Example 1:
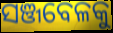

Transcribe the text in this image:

ସଞ୍ଜବେଳକୁ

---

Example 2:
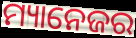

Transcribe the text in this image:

ମ୍ୟାନେଜର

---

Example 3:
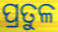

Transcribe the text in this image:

ପ୍ରତୁଳ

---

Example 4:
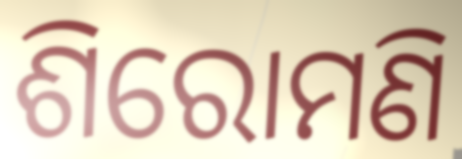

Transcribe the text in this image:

ଶିରୋମଣି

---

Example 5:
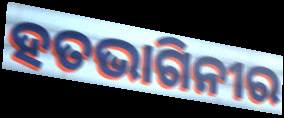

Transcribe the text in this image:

ହତଭାଗିନୀର